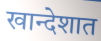
खान्देशात